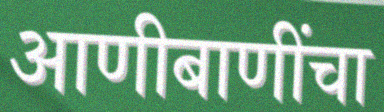
आणीबाणींचा